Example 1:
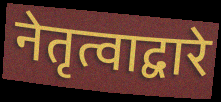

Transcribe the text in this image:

नेतृत्वाद्वारे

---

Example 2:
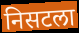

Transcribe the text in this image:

निसटला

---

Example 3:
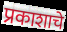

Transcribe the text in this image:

प्रकाशाचे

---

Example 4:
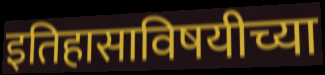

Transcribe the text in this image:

इतिहासाविषयीच्या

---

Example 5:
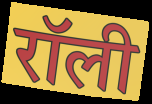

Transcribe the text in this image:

रॉली